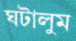
ঘটালুম